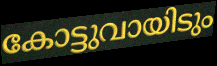
കോട്ടുവായിടും